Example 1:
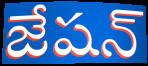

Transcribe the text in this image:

జేషన్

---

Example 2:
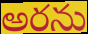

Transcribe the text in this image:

అరను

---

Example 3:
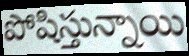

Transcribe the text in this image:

పోషిస్తున్నాయి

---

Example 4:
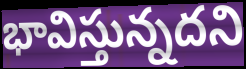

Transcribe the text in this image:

భావిస్తున్నదని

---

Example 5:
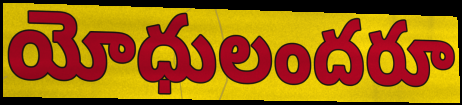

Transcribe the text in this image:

యోధులందరూ